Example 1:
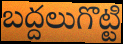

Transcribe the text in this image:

బద్దలుగొట్టి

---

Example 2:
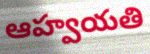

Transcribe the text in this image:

ఆహ్వయతి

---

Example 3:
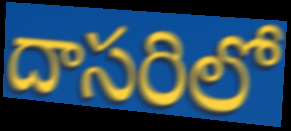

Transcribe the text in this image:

దాసరిలో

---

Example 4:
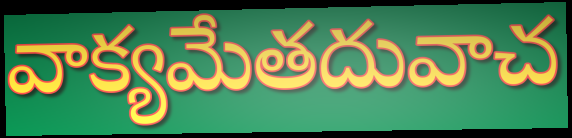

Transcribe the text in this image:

వాక్యమేతదువాచ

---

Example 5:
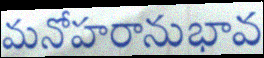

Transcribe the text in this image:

మనోహరానుభావ